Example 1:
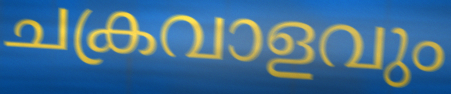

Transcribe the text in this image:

ചക്രവാളവും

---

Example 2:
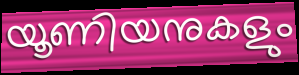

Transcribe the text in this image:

യൂണിയനുകളും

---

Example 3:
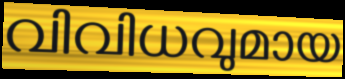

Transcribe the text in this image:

വിവിധവുമായ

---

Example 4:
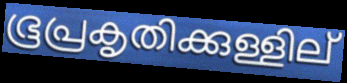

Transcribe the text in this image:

ഭൂപ്രകൃതിക്കുള്ളില്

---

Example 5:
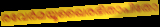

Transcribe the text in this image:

രവേർമയൂഖൈരഭിതാപിതോ